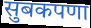
सुबकपणा